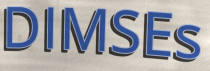
DIMSEs